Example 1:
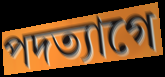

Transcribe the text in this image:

পদত্যাগে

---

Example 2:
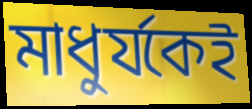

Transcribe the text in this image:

মাধুর্যকেই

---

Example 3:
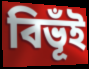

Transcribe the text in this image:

বিভূঁই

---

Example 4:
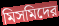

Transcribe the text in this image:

মিসমিদের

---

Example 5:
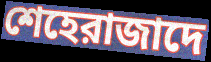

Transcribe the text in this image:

শেহেরাজাদে